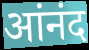
आंनंद